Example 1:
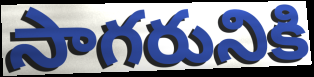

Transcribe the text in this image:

సాగరునికి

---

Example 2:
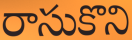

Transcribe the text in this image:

రాసుకొని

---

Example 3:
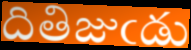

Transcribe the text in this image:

దితిజుఁడు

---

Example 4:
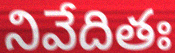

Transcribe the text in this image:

నివేదితః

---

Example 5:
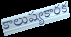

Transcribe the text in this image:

కాలుష్యకారక